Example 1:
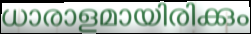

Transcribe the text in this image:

ധാരാളമായിരിക്കും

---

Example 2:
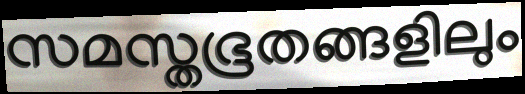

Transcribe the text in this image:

സമസ്തഭൂതങ്ങളിലും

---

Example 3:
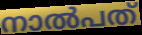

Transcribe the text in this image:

നാൽപത്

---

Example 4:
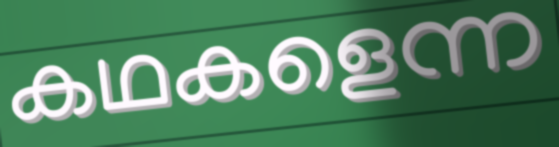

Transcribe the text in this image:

കഥകളെന്ന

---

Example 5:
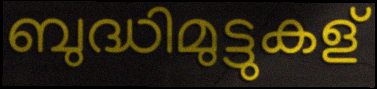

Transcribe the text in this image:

ബുദ്ധിമുട്ടുകള്